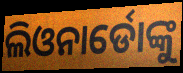
ଲିଓନାର୍ଡୋଙ୍କୁ